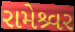
રામેશ્ર્વર